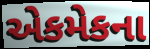
એકમેકના